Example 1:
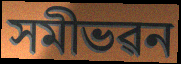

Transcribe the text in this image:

সমীভৱন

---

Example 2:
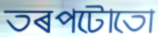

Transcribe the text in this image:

তৰপটোতো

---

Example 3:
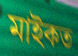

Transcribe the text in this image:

মাইকত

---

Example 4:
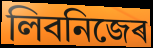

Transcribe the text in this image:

লিবনিজেৰ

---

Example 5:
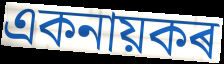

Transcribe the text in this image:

একনায়কৰ